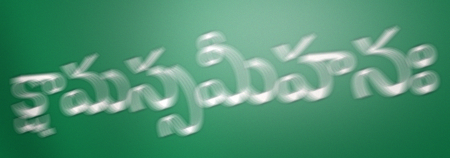
క్షామస్సమీహనః